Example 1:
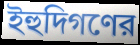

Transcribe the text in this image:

ইহুদিগণের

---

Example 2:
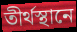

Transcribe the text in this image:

তীর্থস্থানে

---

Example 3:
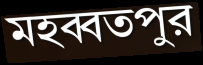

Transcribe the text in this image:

মহব্বতপুর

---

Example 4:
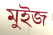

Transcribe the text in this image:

মুইজ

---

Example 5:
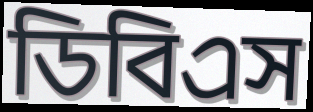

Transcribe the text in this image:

ডিবিএস